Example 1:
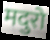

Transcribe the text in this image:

मदुरो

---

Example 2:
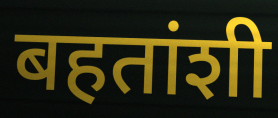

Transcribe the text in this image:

बहतांशी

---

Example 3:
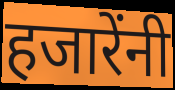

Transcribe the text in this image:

हजारेंनी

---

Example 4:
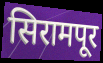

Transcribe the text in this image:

सिरामपूर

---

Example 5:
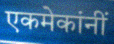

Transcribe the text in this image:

एकमेकांनीं